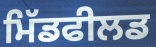
ਮਿੱਡਫੀਲਡ